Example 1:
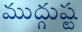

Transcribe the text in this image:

ముద్గుష్ట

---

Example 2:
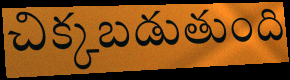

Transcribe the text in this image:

చిక్కబడుతుంది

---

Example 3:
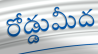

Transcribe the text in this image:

రోడ్డుమీద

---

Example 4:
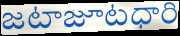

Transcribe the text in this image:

జటాజూటధారి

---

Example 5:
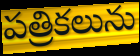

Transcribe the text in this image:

పత్రికలును